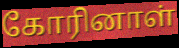
கோரினாள்